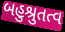
બહુશ્રુતત્વ